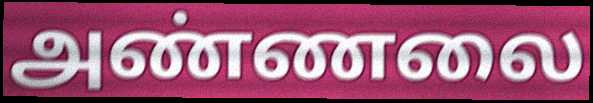
அண்ணலை